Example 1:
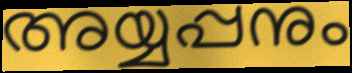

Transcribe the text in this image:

അയ്യപ്പനും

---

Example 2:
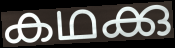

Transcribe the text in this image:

കഥക്കു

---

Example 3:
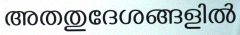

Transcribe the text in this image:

അതതുദേശങ്ങളിൽ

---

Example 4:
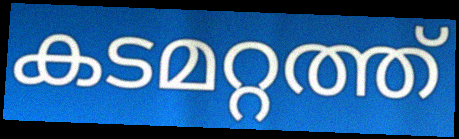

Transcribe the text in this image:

കടമറ്റത്ത്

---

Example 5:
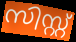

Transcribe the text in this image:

സിസ്റ്റ്